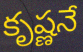
కృష్ణనే